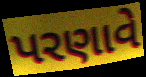
પરણાવે